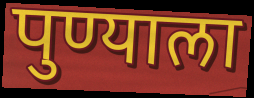
पुण्याला